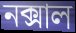
নক্সাল